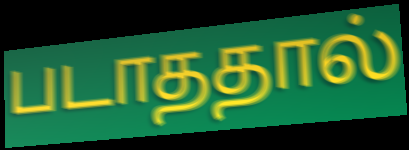
படாததால்